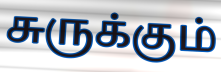
சுருக்கும்